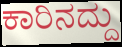
ಕಾರಿನದ್ದು